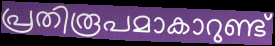
പ്രതിരൂപമാകാറുണ്ട്